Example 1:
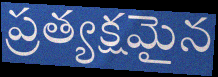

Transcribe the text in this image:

ప్రత్యక్షమైన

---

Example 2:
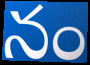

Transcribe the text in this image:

నం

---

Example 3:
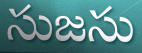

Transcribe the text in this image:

సుజసు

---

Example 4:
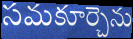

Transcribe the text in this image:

సమకూర్చెను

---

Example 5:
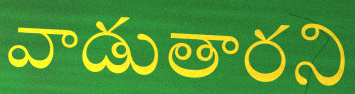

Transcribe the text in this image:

వాడుతారని